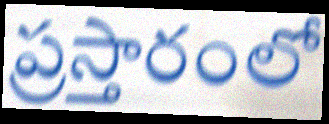
ప్రస్తారంలో